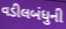
વડીલબંધુની